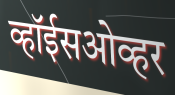
व्हॉईसओव्हर